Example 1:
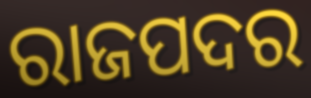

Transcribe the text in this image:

ରାଜପଦର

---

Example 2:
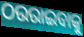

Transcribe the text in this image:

ଠଉରାଇବାକୁ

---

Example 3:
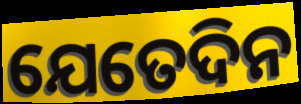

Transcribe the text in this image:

ଯେତେଦିନ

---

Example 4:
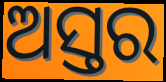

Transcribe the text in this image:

ଅସ୍ତର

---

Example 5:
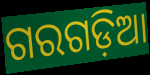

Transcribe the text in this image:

ଗରଗଡ଼ିଆ